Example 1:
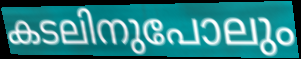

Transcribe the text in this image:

കടലിനുപോലും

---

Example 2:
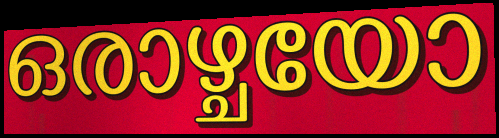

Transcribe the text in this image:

ഒരാഴ്ചയോ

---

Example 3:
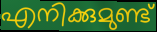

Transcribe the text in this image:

എനിക്കുമുണ്ട്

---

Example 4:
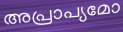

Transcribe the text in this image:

അപ്രാപ്യമോ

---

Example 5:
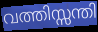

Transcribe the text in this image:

വത്തിസ്സന്തി